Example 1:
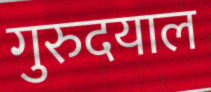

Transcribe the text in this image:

गुरुदयाल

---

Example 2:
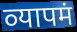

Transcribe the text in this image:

व्‍यापमं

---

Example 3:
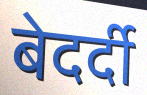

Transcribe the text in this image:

बेदर्दी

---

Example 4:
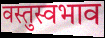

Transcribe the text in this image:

वस्तुस्वभाव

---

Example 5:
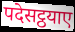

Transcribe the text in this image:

पदेसट्ठयाए